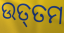
ଉତ୍‌ତମ